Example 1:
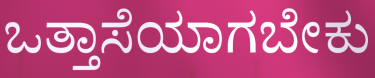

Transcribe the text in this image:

ಒತ್ತಾಸೆಯಾಗಬೇಕು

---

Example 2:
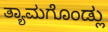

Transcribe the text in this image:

ತ್ಯಾಮಗೊಂಡ್ಲು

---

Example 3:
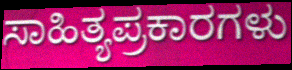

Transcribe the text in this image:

ಸಾಹಿತ್ಯಪ್ರಕಾರಗಳು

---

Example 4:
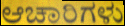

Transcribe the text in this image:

ಆಚಾರಿಗಳು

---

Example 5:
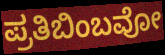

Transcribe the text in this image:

ಪ್ರತಿಬಿಂಬವೋ